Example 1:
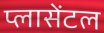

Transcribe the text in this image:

प्लासेंटल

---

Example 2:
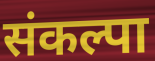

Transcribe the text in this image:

संकल्पा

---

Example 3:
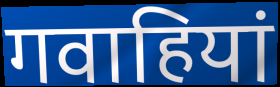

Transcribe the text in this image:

गवाहियां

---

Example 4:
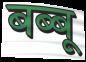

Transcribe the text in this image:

बब्बू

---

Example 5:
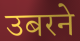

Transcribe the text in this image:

उबरने